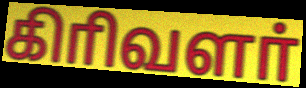
கிரிவளர்